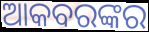
ଆକବରଙ୍କର